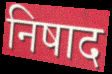
निषाद